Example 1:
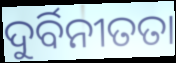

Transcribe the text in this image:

ଦୁର୍ବିନୀତତା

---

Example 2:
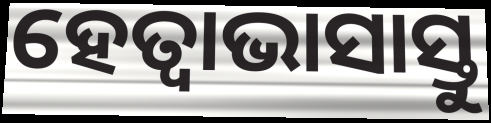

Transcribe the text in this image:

ହେତ୍ଵାଭାସାସ୍ତୁ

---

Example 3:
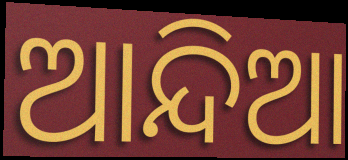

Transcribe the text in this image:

ଆନ୍ଦିଆ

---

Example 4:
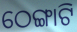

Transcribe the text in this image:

ଠେଙ୍ଗାଟି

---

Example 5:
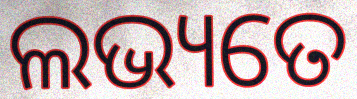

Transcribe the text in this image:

ଲଭ୍ୟତେ